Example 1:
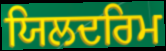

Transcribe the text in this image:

ਯਿਲਦਰਿਮ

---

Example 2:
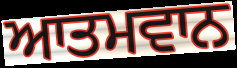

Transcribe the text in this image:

ਆਤਮਵਾਨ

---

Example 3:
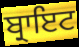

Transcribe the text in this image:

ਬ੍ਰਾਇਟ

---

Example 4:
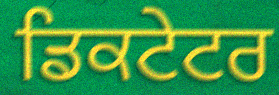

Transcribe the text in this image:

ਡਿਕਟੇਟਰ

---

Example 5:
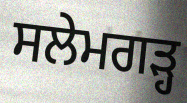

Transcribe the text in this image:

ਸਲੇਮਗੜ੍ਹ